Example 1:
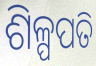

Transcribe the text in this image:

ଶିଳ୍ପପତି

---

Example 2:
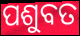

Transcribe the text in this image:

ପଶୁବତ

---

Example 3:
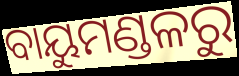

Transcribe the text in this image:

ବାୟୁମଣ୍ଡଳରୁ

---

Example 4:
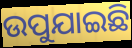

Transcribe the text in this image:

ଉପୁଯାଇଛି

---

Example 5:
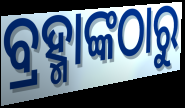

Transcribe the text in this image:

ବ୍ରହ୍ମାଙ୍କଠାରୁ